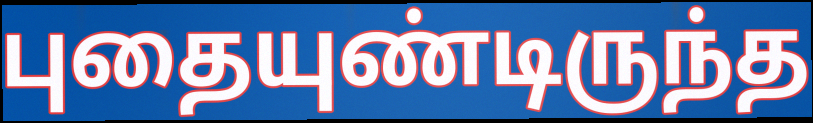
புதையுண்டிருந்த